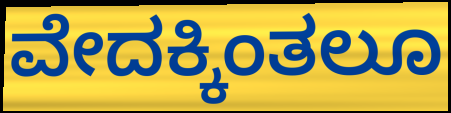
ವೇದಕ್ಕಿಂತಲೂ